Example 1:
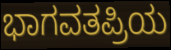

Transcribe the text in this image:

ಭಾಗವತಪ್ರಿಯ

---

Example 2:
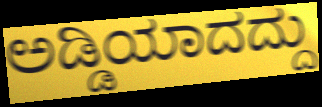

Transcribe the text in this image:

ಅಡ್ಡಿಯಾದದ್ದು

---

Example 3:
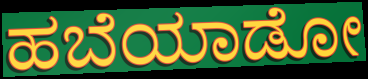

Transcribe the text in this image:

ಹಬೆಯಾಡೋ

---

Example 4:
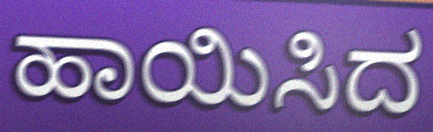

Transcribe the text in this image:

ಹಾಯಿಸಿದ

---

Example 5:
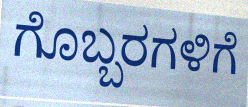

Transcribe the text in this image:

ಗೊಬ್ಬರಗಳಿಗೆ